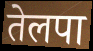
तेलपा